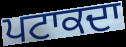
ਪਟਾਕਦਾ